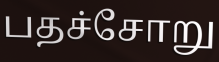
பதச்சோறு